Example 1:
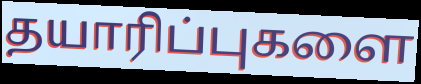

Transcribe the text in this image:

தயாரிப்புகளை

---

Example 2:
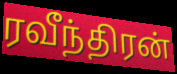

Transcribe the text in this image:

ரவீந்திரன்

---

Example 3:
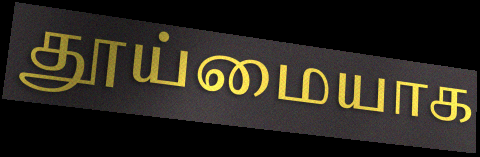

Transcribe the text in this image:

தூய்மையாக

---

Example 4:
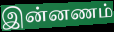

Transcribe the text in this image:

இன்னணம்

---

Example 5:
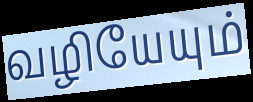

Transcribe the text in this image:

வழியேயும்